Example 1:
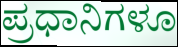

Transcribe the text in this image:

ಪ್ರಧಾನಿಗಳೂ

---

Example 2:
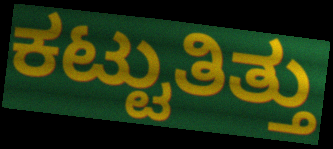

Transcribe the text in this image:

ಕಟ್ಟುತಿತ್ತು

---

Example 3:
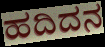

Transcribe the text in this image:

ಹದಿದನ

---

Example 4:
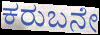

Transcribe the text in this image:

ಕರುಬನೇ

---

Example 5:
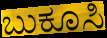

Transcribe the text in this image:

ಬುಕೂಸಿ